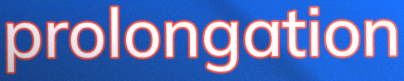
prolongation